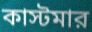
কাস্টমার